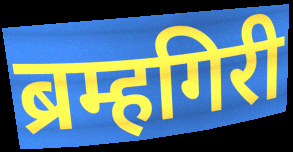
ब्रम्हगिरी